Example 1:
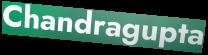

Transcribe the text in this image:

Chandragupta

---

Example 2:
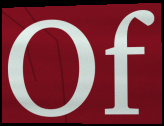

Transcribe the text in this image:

Of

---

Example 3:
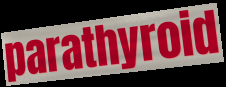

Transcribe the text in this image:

parathyroid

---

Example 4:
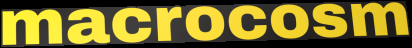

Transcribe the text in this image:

macrocosm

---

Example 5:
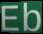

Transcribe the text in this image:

Eb